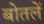
बोतलें